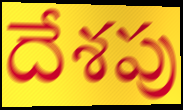
దేశపు